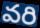
వరి